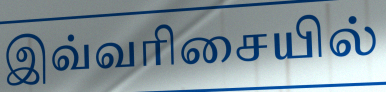
இவ்வரிசையில்